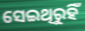
ସେଇଥିରୁହିଁ